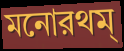
মনোরথম্